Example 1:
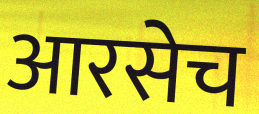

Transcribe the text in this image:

आरसेच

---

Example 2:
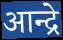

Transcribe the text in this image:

आन्द्रे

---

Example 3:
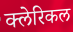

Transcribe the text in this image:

क्लेरिकल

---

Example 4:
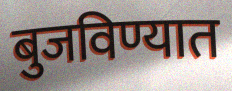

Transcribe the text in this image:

बुजविण्यात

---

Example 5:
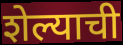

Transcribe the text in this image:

शेल्याची